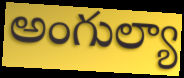
అంగుల్యా